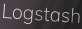
Logstash